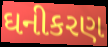
ઘનીકરણ